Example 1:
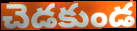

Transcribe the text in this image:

చెడకుండ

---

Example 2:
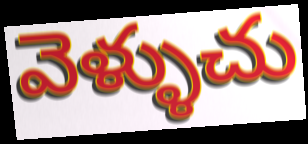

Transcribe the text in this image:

వెళ్ళుచు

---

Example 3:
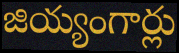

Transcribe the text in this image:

జియ్యంగార్లు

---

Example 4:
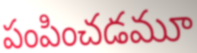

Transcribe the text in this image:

పంపించడమూ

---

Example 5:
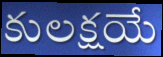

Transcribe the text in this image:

కులక్షయే